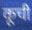
कूची